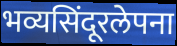
भव्यसिंदूरलेपना